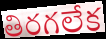
తిరగలేక